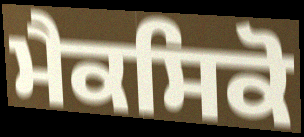
ਮੈਕਸਿਕੋ